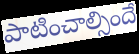
పాటించాల్సిందే